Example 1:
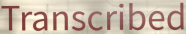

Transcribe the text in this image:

Transcribed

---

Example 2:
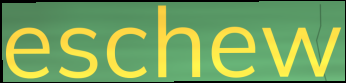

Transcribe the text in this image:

eschew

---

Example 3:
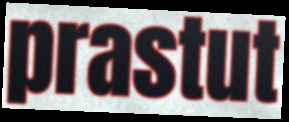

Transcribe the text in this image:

prastut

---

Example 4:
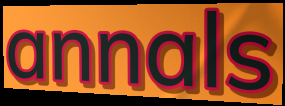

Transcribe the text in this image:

annals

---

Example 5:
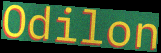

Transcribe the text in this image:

Odilon